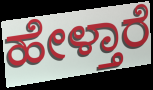
ಹೇಳ್ತಾರೆ